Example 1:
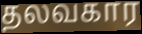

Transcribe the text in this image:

தலவகார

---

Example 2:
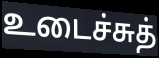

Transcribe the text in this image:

உடைச்சுத்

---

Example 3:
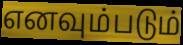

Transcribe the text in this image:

எனவும்படும்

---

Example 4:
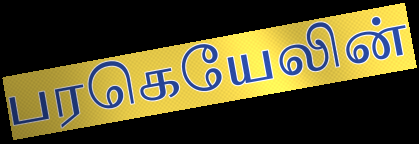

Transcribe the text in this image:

பரகெயேலின்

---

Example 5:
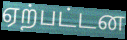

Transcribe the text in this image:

ஏற்பட்டன